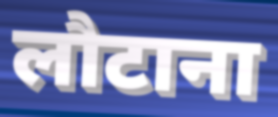
लौटाना